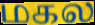
மகல